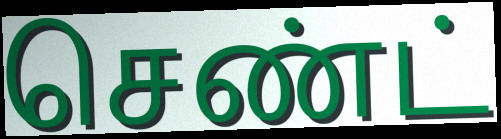
செண்ட்